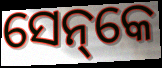
ସେନ୍‌କେ